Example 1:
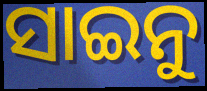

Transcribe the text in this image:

ସାଇନୁ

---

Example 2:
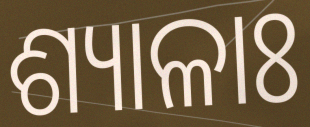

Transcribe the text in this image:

ଶ୍ୟାଳାଃ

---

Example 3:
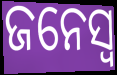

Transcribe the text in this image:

ଜନେସ୍ୱ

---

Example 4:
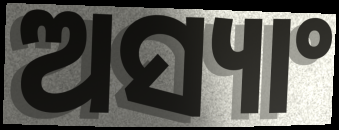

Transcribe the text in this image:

ଅସ୍ୟାଂ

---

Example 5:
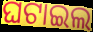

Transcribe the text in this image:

ଘଟାଇଲ